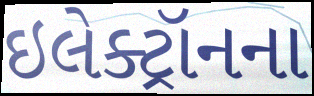
ઇલેક્ટ્રૉનના